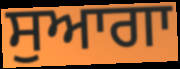
ਸੁਆਗਾ